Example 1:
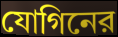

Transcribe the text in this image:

যোগিনের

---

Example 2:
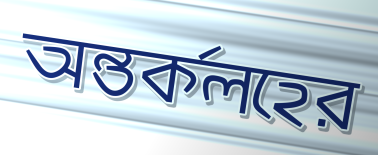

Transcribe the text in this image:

অন্তর্কলহের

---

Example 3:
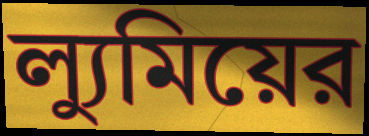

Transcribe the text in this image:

ল্যুমিয়ের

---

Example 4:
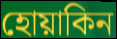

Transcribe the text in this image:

হোয়াকিন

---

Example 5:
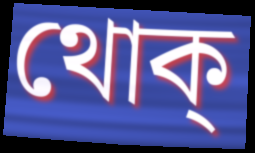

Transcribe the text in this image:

থোক্